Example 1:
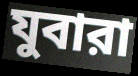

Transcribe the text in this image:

যুবারা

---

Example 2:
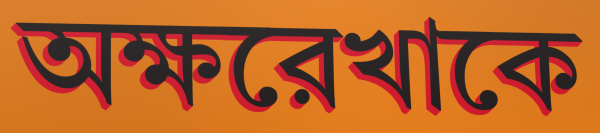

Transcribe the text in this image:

অক্ষরেখাকে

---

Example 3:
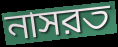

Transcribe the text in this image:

নাসরত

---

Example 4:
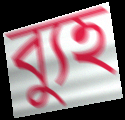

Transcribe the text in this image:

ব্যুহ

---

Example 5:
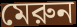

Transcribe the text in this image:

মেরুন